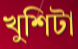
খুশিটা